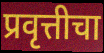
प्रवृत्तीचा